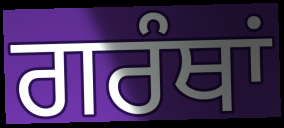
ਗਰੰਥਾਂ